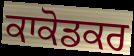
ਕਾਕੋਡਕਰ